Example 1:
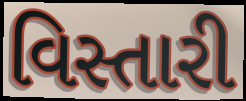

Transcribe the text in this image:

વિસ્તારી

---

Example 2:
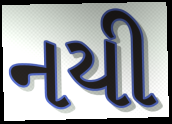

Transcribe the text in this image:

નયી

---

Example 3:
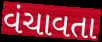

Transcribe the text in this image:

વંચાવતા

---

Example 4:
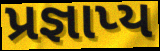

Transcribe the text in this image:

પ્રજ્ઞાપ્ય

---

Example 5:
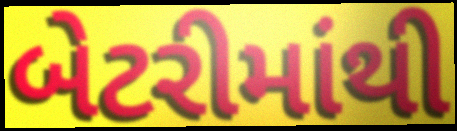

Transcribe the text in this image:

બેટરીમાંથી